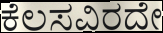
ಕೆಲಸವಿರದೇ